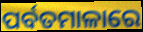
ପର୍ବତମାଳାରେ